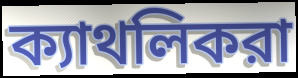
ক্যাথলিকরা